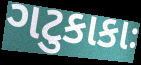
ગટુકાકાઃ